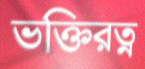
ভক্তিরত্ন